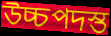
উচ্চপদস্ত